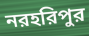
নরহরিপুর